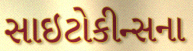
સાઇટોકીન્સના